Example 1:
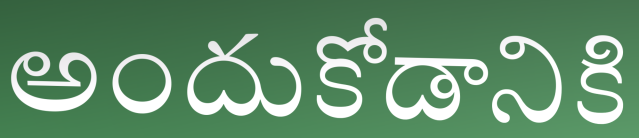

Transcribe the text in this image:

అందుకోడానికి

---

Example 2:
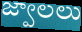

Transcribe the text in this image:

జ్వాలలు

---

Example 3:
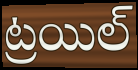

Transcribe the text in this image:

ట్రయిల్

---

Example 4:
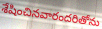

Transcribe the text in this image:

శేషించినవారందరితోను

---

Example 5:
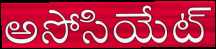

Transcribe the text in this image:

అసోసియేట్